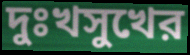
দুঃখসুখের